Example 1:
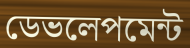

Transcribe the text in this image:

ডেভলেপমেন্ট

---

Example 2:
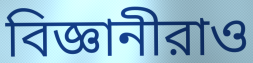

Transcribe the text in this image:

বিজ্ঞানীরাও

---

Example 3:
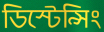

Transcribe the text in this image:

ডিস্টেন্সিং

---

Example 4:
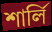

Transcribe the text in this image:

শার্লি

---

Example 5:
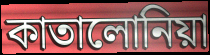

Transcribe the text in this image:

কাতালোনিয়া